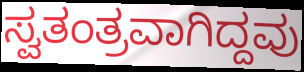
ಸ್ವತಂತ್ರವಾಗಿದ್ದವು